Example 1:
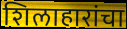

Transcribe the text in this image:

शिलाहारांचा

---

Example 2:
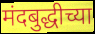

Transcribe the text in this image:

मंदबुद्धीच्या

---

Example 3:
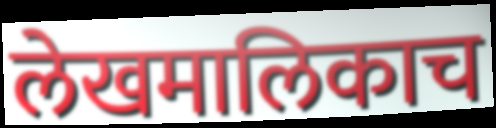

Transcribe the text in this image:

लेखमालिकाच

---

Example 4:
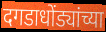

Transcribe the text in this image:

दगडाधोंड्यांच्या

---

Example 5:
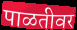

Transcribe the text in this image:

पाळतीवर